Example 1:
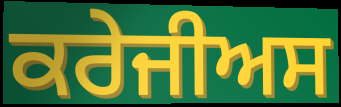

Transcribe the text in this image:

ਕਰੇਜੀਅਸ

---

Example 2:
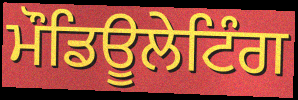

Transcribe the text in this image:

ਮੌਡਿਊਲੇਟਿੰਗ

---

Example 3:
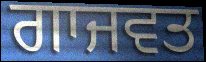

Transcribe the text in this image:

ਗਾਜਵਤ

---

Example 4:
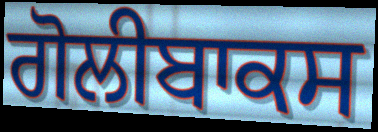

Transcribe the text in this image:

ਗੋਲੀਬਾਕਸ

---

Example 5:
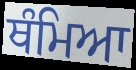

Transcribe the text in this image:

ਥੰਮਿਆ